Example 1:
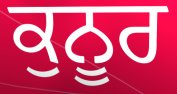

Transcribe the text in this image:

ਕੁਨੂਰ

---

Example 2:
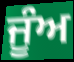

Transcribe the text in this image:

ਜੂੰਅ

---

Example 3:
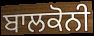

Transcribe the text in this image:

ਬਾਲਕੋਨੀ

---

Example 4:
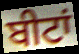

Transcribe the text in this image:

ਬੀਟਾਂ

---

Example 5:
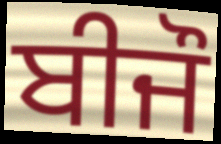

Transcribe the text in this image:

ਬੀਜੌ